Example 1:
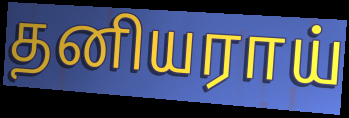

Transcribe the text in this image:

தனியராய்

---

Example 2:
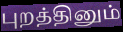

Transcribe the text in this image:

புறத்தினும்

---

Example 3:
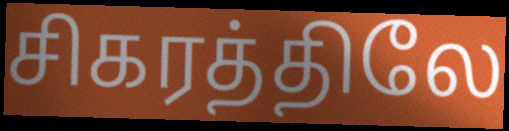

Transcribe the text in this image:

சிகரத்திலே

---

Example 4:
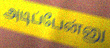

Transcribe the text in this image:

அடிப்பேன்னு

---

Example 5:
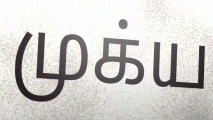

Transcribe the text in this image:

முக்ய